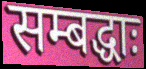
सम्बद्धाः